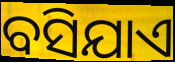
ବସିଯାଏ